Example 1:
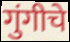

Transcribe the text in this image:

गुंगीचे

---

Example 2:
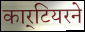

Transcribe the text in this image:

कार्टियरने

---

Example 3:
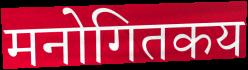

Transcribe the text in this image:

मनोगितकय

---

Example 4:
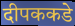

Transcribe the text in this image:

दीपककडे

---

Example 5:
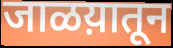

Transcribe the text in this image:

जाळय़ातून